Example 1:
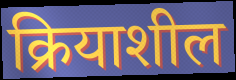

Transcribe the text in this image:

क्रियाशील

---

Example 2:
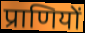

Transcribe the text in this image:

प्राणियों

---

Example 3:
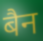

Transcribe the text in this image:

बैन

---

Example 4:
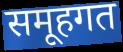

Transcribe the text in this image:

समूहगत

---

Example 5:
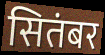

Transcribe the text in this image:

सितंबर